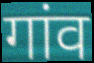
गांव